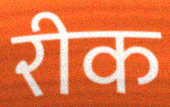
रीक